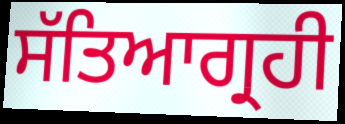
ਸੱਤਿਆਗ੍ਰਹੀ